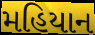
મહિયાન